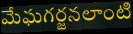
మేఘగర్జనలాంటి